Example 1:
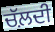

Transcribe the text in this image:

ਚੱਲ਼ਦੀ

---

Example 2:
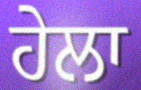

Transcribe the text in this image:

ਹੇਲਾ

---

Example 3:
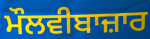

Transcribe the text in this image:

ਮੌਲਵੀਬਾਜ਼ਾਰ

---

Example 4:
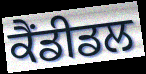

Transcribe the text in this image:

ਕੈਂਡੀਡਲ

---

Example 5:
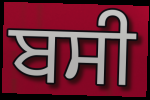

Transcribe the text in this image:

ਬਸੀ